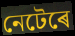
নেটেৰে